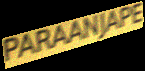
PARAANJAPE